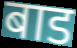
बाड